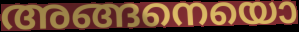
അങ്ങനെയൊ